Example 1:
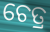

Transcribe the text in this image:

ଚେତ୍ର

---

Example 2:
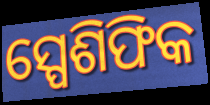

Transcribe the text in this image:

ସ୍ପେଶିଫିକ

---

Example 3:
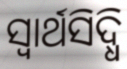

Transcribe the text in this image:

ସ୍ୱାର୍ଥସିଦ୍ଧି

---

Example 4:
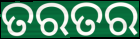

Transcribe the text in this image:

ତରତର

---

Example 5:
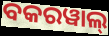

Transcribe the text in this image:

ବକରୱାଲ୍